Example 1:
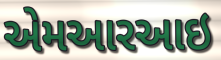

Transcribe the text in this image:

એમઆરઆઇ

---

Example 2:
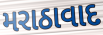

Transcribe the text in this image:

મરાઠાવાદ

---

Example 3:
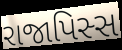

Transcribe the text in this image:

રાજાપિસ્સ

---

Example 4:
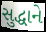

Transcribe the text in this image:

સુદ્ધાને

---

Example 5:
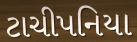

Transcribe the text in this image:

ટાચીપનિયા